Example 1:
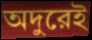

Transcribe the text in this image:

অদুরেই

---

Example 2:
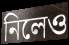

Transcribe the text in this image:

নিলেও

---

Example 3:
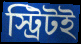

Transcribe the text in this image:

স্ট্রিটই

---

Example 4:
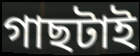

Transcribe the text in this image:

গাছটাই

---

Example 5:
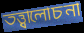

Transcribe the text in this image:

তত্ত্বালোচনা